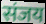
संजय